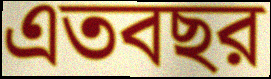
এতবছর